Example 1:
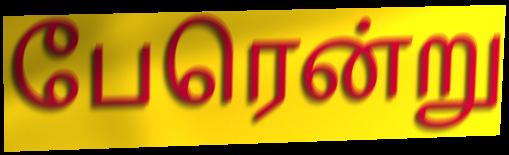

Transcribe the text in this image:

பேரென்று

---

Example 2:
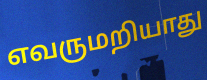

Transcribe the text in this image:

எவருமறியாது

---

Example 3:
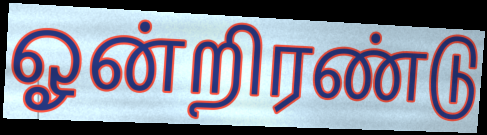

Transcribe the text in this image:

ஓன்றிரண்டு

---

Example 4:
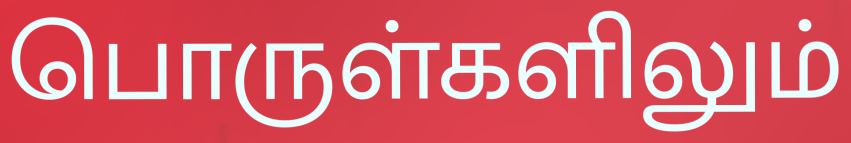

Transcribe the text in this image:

பொருள்களிலும்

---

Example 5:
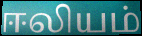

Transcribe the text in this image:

ஈலியம்